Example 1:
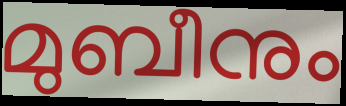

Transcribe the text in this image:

മുബീനും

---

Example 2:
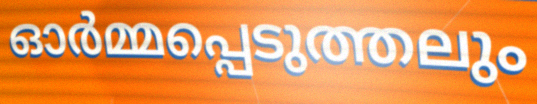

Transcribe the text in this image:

ഓർമ്മപ്പെടുത്തലും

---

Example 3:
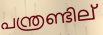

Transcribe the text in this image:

പന്ത്രണ്ടില്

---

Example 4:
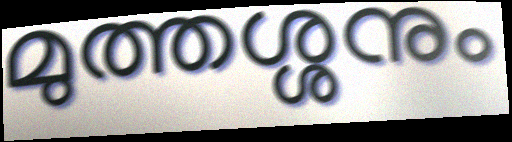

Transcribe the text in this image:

മുത്തശ്ശനും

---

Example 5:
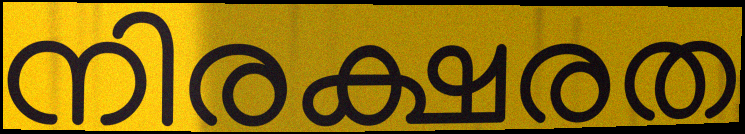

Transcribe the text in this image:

നിരക്ഷരത